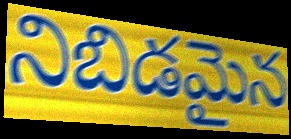
నిబిడమైన